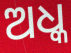
ଅଧ୍କ